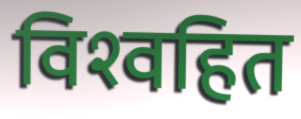
विश्वहित